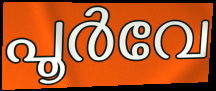
പൂർവേ